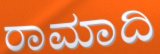
ರಾಮಾದಿ